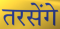
तरसेंगे